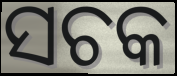
ସଚକ